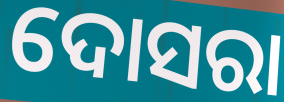
ଦୋସରା